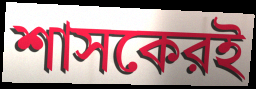
শাসকেরই